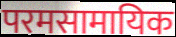
परमसामायिक